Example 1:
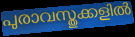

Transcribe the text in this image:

പുരാവസ്തുക്കളിൽ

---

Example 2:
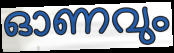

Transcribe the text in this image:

ഓണവും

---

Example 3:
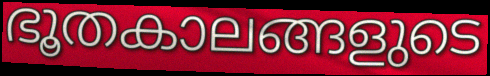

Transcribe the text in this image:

ഭൂതകാലങ്ങളുടെ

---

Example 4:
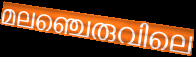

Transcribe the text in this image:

മലഞ്ചെരുവിലെ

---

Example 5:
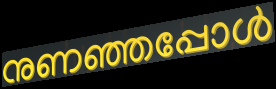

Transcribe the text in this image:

നുണഞ്ഞപ്പോൾ